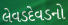
લેવડદેવડનો